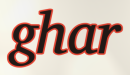
ghar